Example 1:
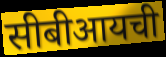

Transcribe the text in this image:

सीबीआयची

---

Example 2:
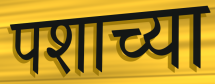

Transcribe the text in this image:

पशाच्या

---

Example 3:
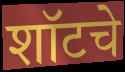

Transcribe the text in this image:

शॉटचे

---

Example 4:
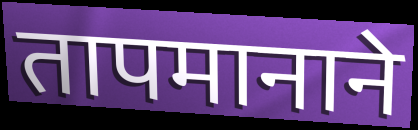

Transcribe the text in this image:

तापमानाने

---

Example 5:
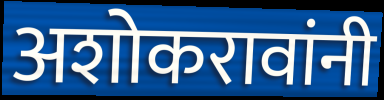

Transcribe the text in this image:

अशोकरावांनी